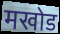
मखोड